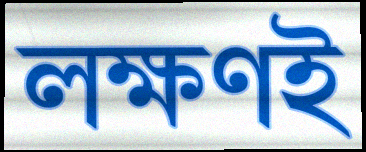
লক্ষণই